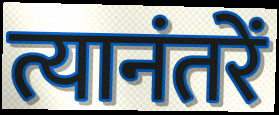
त्यानंतरें